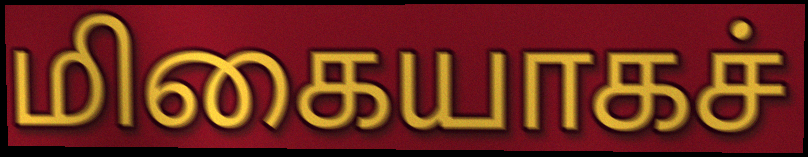
மிகையாகச்